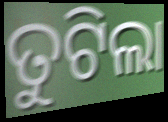
ତୁଟିଲା